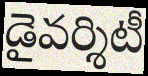
డైవర్శిటీ